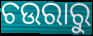
ଚଉରାରୁ